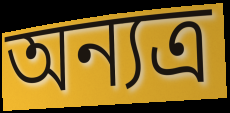
অন্যত্ৰ